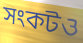
সংকটও